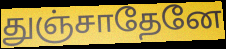
துஞ்சாதேனே